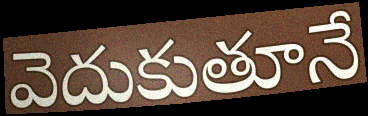
వెదుకుతూనే